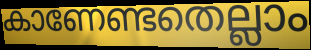
കാണേണ്ടതെല്ലാം